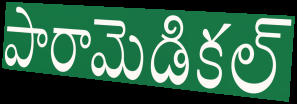
పారామెడికల్